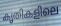
കൃതികളിലെ